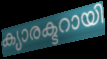
ക്യാരക്ടറായി